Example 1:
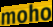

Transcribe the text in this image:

moho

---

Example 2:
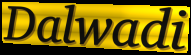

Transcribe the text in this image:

Dalwadi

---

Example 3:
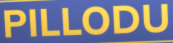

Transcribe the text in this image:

PILLODU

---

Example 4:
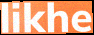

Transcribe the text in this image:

likhe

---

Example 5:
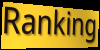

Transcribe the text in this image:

Ranking